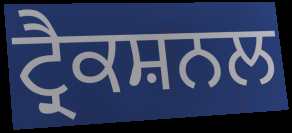
ਟ੍ਰੈਕਸ਼ਨਲ